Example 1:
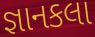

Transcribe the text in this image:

જ્ઞાનકલા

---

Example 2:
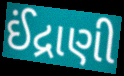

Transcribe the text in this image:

ઈંદ્રાણી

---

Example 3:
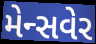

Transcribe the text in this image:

મેન્સવેર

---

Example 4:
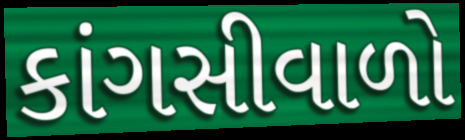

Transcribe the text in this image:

કાંગસીવાળો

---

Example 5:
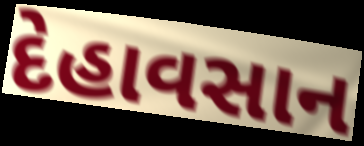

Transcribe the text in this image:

દેહાવસાન